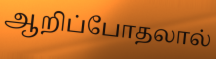
ஆறிப்போதலால்